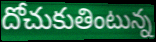
దోచుకుతింటున్న